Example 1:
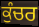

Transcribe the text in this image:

ਕੁੰਚਰ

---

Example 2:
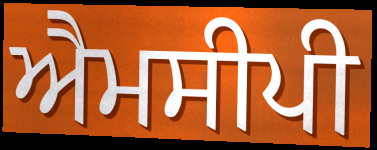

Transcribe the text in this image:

ਐਮਸੀਪੀ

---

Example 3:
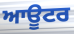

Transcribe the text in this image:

ਆਊਟਰ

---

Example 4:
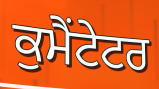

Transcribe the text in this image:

ਕੁਮੈਂਟੇਟਰ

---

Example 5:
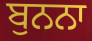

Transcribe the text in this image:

ਬੁਨਨਾ